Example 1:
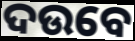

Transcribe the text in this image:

ଦଉବେ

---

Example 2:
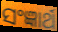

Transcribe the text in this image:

ସଂଜ୍ଞାର୍ଥ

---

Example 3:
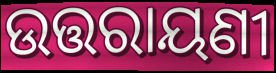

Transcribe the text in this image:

ଉତ୍ତରାୟଣୀ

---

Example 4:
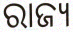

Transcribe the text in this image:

ରାଜ୍ୟ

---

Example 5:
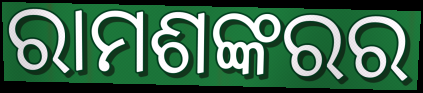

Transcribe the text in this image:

ରାମଶଙ୍କରର